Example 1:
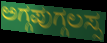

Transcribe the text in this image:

ಅಗ್ಗಪುಗ್ಗಲಸ್ಸ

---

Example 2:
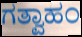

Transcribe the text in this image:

ಗತ್ವಾಹಂ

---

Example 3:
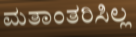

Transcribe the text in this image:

ಮತಾಂತರಿಸಿಲ್ಲ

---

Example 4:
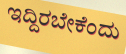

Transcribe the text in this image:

ಇದ್ದಿರಬೇಕೆಂದು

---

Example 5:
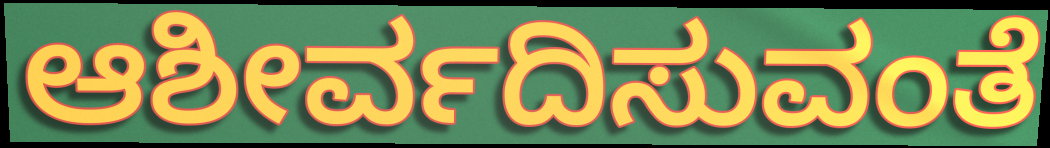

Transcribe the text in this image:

ಆಶೀರ್ವದಿಸುವಂತೆ